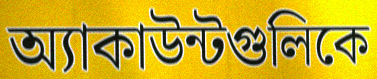
অ্যাকাউন্টগুলিকে